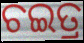
ଚଇତ୍ର